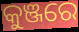
କୁଞ୍ଜରେ